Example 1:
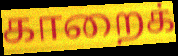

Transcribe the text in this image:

காறைக்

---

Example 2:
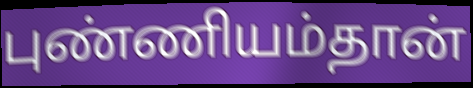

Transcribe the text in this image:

புண்ணியம்தான்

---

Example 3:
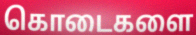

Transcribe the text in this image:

கொடைகளை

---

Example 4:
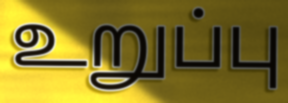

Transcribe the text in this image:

உறுப்பு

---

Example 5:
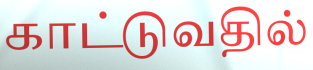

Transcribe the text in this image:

காட்டுவதில்